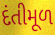
દંતીમૂળ